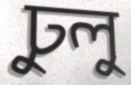
ঢুলু